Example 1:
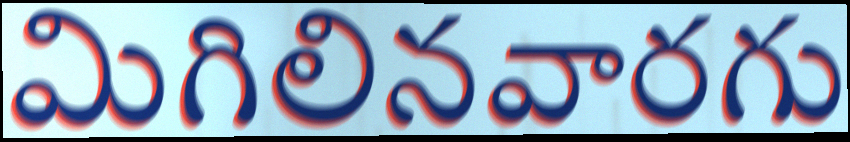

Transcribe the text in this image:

మిగిలినవారగు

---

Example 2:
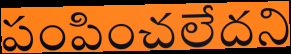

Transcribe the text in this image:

పంపించలేదని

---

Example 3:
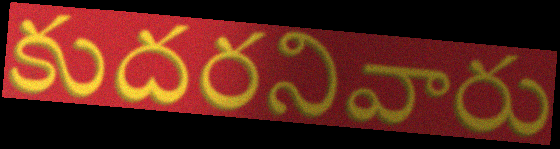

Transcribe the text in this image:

కుదరనివారు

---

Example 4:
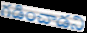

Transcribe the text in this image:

గడించాడని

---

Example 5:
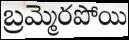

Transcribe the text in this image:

బ్రమ్మెరపోయి